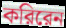
করিরেন